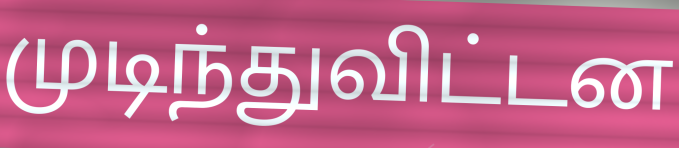
முடிந்துவிட்டன